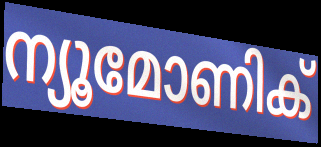
ന്യൂമോണിക്